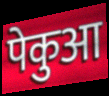
पेकुआ